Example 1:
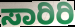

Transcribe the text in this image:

ಸಾರಿರಿ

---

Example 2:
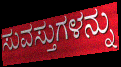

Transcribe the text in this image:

ಸುವಸ್ತುಗಳನ್ನು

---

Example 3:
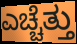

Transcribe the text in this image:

ಎಚ್ಚೆತ್ತು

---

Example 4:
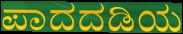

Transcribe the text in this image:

ಪಾದದಡಿಯ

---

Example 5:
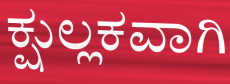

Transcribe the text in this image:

ಕ್ಷುಲ್ಲಕವಾಗಿ